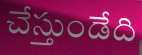
చేస్తుండేది